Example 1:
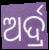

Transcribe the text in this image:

ଅର୍ଦ୍ର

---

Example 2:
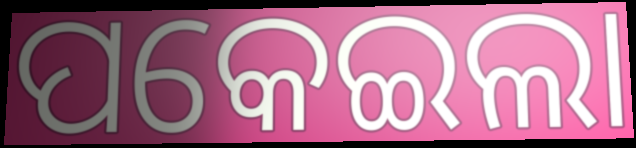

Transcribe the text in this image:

ପକେଇଲା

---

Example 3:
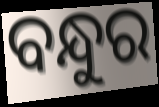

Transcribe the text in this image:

ବନ୍ଧୁର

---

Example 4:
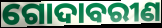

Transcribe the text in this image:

ଗୋଦାବରୀଣ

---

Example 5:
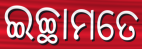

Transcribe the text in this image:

ଇଚ୍ଛାମତେ